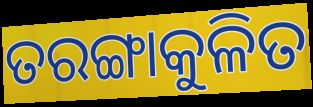
ତରଙ୍ଗାକୁଳିତ